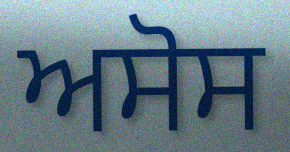
ਅਸੋਸ